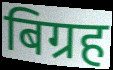
बिग्रह